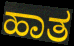
ಹಾತ